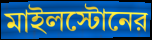
মাইলস্টোনের